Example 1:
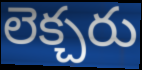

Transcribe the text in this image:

లెక్చరు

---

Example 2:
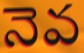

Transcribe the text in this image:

నెవ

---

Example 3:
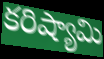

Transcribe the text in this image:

కరిష్యామి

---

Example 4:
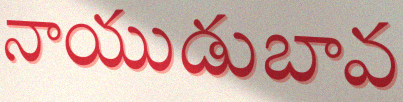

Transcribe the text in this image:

నాయుడుబావ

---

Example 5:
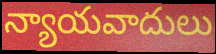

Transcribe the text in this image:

న్యాయవాదులు